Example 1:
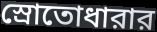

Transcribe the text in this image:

স্রোতোধারার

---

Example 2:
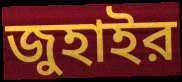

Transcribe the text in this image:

জুহাইর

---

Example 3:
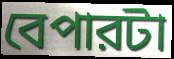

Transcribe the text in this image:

বেপারটা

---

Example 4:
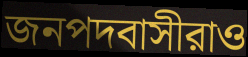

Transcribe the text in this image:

জনপদবাসীরাও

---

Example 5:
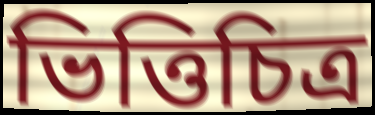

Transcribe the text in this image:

ভিত্তিচিত্র